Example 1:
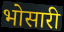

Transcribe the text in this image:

भोसारी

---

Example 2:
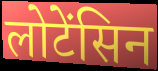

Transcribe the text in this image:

लोटेंसिन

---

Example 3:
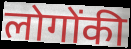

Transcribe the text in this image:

लोगोंकी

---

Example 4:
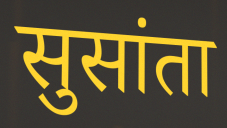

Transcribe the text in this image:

सुसांता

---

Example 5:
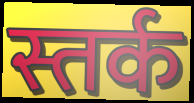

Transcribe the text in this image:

स्तर्क